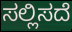
ಸಲ್ಲಿಸದೆ